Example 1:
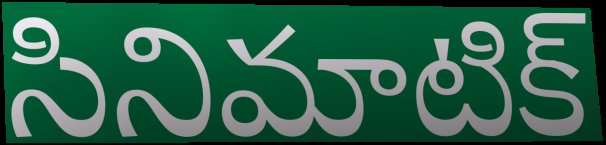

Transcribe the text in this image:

సినిమాటిక్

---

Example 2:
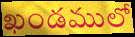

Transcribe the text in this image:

ఖండములో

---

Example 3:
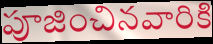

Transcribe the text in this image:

పూజించినవారికి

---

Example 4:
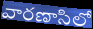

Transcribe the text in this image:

వారణాసిలో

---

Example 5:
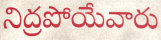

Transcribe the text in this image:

నిద్రపోయేవారు